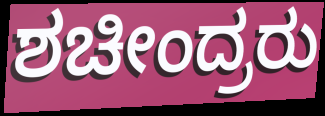
ಶಚೀಂದ್ರರು